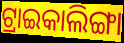
ଟ୍ରାଇକାଲିଙ୍ଗା